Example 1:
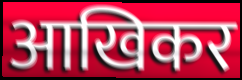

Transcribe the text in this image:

आखिकर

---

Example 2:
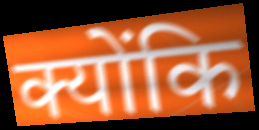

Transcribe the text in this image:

क्‍योंकि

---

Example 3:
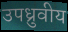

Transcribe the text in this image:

उपध्रुवीय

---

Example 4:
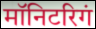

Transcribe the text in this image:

मॉनिटरिगं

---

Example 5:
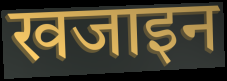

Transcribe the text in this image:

खजाइन